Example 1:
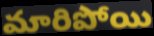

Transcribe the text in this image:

మారిపోయి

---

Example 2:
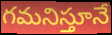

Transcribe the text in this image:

గమనిస్తూనే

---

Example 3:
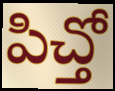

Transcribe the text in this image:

పిచ్తో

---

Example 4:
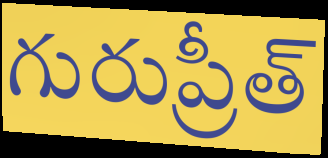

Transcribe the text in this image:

గురుప్రీత్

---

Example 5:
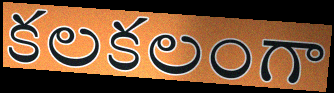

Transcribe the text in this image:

కలకలంగా